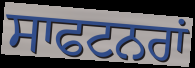
ਸਾਫਟਨਰਾਂ